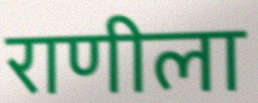
राणीला